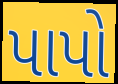
પાપો